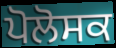
ਪੋਲੋਸਕ